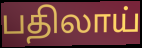
பதிலாய்